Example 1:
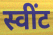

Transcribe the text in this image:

स्वींट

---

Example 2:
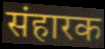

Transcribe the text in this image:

संहारक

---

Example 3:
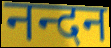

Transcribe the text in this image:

नन्दन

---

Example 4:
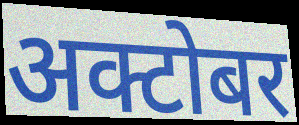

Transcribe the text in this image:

अक्टोबर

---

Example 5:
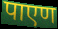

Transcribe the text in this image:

पाएण